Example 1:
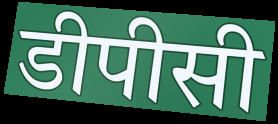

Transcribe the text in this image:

डीपीसी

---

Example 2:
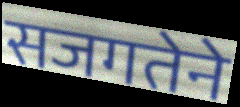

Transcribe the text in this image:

सजगतेने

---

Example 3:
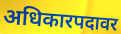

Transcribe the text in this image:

अधिकारपदावर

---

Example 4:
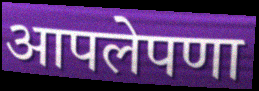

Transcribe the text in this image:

आपलेपणा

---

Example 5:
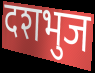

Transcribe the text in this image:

दशभुज